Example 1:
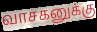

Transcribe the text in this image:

வாசகனுக்கு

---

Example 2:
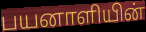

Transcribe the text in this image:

பயனாளியின்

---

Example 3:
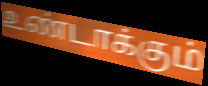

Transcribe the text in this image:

உண்டாக்கும்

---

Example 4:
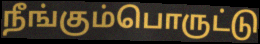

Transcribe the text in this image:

நீங்கும்பொருட்டு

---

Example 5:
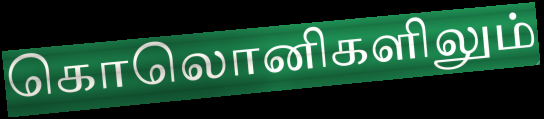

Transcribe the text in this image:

கொலொனிகளிலும்